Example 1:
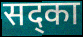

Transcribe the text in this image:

सद्का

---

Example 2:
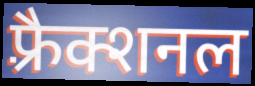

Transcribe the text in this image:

फ़्रैक्शनल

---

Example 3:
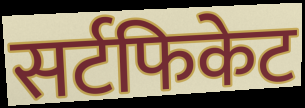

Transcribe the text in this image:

सर्टफिकेट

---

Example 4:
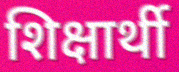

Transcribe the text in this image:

शिक्षार्थी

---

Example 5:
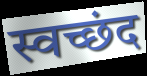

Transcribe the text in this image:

स्वच्छंद